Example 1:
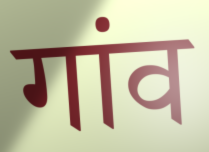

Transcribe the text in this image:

गांव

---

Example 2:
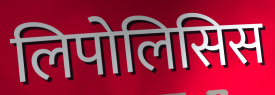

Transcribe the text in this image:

लिपोलिसिस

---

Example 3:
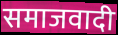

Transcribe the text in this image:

समाजवादी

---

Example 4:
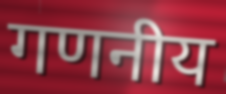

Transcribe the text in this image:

गणनीय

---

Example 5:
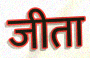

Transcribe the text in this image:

जीता